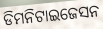
ଡିମନିଟାଇଜେସନ